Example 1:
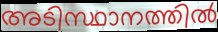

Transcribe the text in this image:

അടിസ്ഥാനത്തിൽ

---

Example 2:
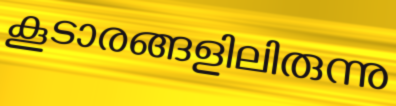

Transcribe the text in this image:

കൂടാരങ്ങളിലിരുന്നു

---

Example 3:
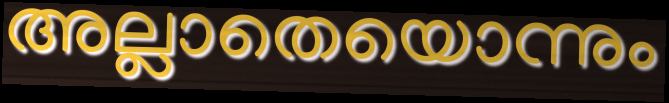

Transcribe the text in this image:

അല്ലാതെയൊന്നും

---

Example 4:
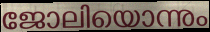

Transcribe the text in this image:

ജോലിയൊന്നും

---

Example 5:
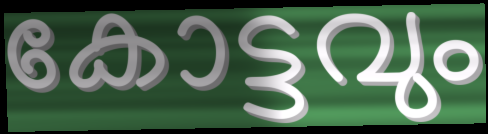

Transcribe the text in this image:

കോട്ടവും